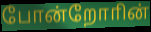
போன்றோரின்